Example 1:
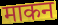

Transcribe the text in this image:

माकन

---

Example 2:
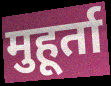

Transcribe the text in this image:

मुहूर्ता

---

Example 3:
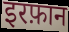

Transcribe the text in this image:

इरफ़ान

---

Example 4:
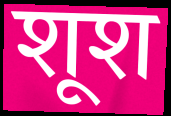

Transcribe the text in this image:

शूश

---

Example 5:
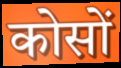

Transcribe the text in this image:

कोसों